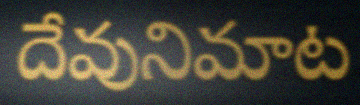
దేవునిమాట